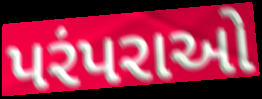
પરંપરાઓ